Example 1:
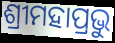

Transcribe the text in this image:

ଶ୍ରୀମହାପ୍ରଭୁ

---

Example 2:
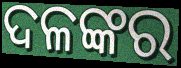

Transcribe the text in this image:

ଦଳଙ୍କର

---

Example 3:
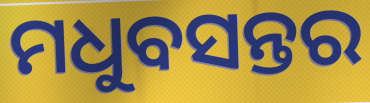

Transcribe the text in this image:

ମଧୁବସନ୍ତର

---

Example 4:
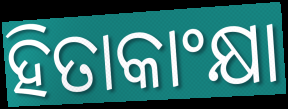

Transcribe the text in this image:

ହିତାକାଂକ୍ଷା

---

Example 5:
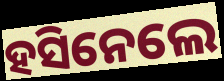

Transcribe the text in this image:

ହସିନେଲେ